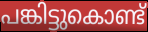
പങ്കിട്ടുകൊണ്ട്